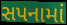
સપનામાં